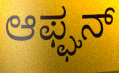
ಆಫ್ಘನ್